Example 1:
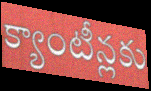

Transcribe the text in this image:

క్యాంటీన్లకు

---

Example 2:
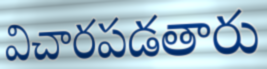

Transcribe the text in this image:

విచారపడతారు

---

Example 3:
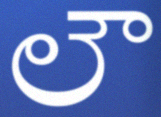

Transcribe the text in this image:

లౌ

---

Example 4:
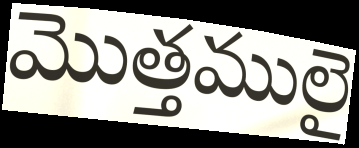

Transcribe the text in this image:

మొత్తములై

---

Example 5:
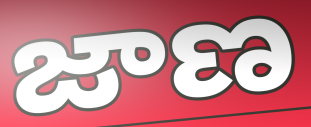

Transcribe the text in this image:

జాణ